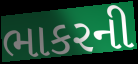
ભાકરની